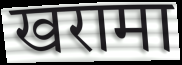
खरामा